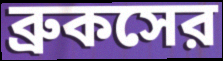
ব্রুকসের